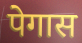
पेगास